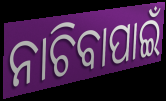
ନାଚିବାପାଇଁ